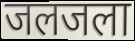
जलजला